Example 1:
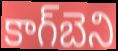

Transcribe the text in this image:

కాగ్‌బెని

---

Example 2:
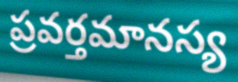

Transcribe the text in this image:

ప్రవర్తమానస్య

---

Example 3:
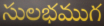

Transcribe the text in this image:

సులభముగ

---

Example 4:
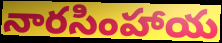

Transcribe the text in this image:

నారసింహాయ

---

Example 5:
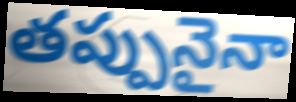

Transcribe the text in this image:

తప్పునైనా